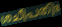
ശചീപതിഃ